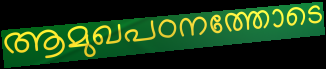
ആമുഖപഠനത്തോടെ